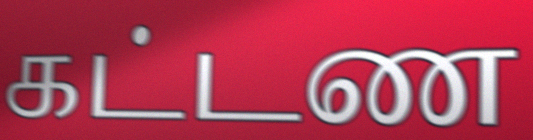
கட்டண